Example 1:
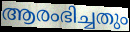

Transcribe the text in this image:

ആരംഭിച്ചതും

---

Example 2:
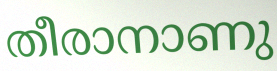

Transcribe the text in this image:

തീരാനാണു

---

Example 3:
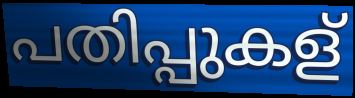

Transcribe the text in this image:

പതിപ്പുകള്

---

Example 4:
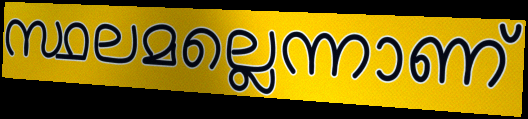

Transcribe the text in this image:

സ്ഥലമല്ലെന്നാണ്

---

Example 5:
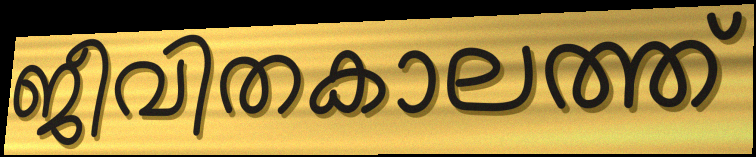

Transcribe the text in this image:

ജീവിതകാലത്ത്